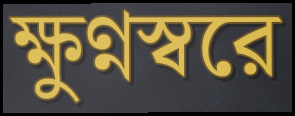
ক্ষুণ্নস্বরে